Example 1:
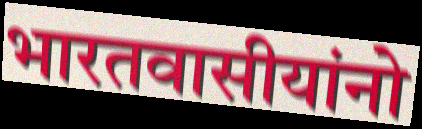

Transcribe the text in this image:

भारतवासीयांनो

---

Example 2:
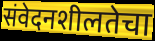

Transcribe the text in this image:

संवेदनशीलतेचा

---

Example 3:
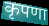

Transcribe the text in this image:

कृपणा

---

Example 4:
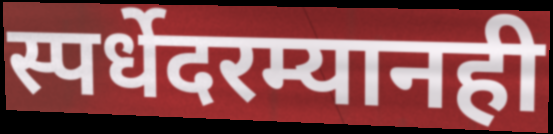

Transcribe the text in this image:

स्पर्धेदरम्यानही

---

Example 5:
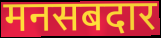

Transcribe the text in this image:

मनसबदार